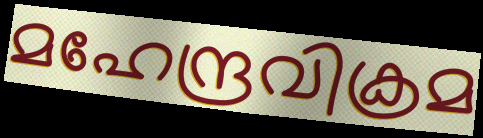
മഹേന്ദ്രവിക്രമ